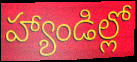
హ్యాండిల్లో